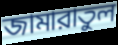
জামারাতুল